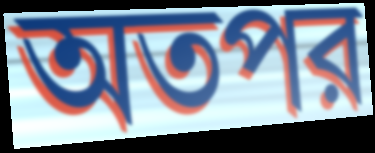
অতপর